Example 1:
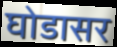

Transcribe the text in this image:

घोडासर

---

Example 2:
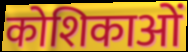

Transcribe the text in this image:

कोशिकाओं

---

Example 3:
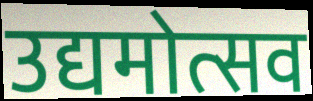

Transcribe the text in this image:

उद्यमोत्सव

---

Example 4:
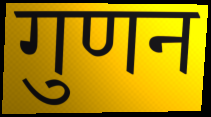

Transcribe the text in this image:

गुणन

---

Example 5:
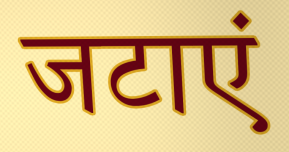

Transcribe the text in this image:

जटाएं